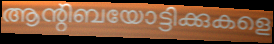
ആന്റിബയോട്ടിക്കുകളെ